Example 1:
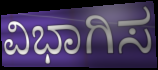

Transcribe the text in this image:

ವಿಭಾಗಿಸ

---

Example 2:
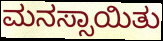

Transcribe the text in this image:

ಮನಸ್ಸಾಯಿತು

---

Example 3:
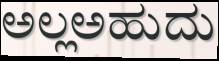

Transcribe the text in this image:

ಅಲ್ಲಅಹುದು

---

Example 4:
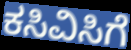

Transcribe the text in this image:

ಕಸಿವಿಸಿಗೆ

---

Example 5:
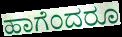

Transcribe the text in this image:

ಹಾಗೆಂದರೂ